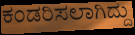
ಕಂಡರಿಸಲಾಗಿದ್ದು